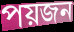
পয়জন